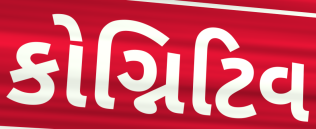
કોગ્નિટિવ